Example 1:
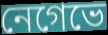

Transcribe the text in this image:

নেগেভে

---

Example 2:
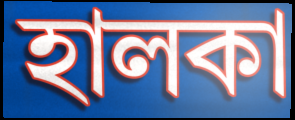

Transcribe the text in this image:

হালকা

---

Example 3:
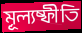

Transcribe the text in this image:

মূল্যষ্ফীতি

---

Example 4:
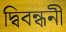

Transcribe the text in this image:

দ্বিবন্ধনী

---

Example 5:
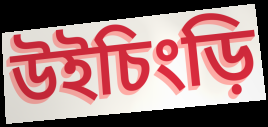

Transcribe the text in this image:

উইচিংড়ি